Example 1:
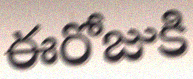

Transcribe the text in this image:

ఈరోజుకి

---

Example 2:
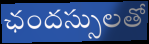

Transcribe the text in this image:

ఛందస్సులతో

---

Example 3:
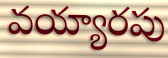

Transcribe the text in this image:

వయ్యారపు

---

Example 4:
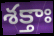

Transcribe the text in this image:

శక్తాః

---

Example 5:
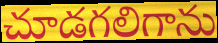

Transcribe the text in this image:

చూడగలిగాను